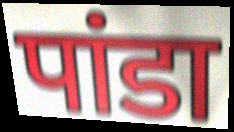
पांडा